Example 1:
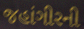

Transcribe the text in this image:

જહાંગીરની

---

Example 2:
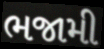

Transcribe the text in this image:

ભજામી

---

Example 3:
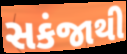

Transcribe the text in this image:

સકંજાથી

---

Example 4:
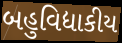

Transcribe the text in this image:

બહુવિદ્યાકીય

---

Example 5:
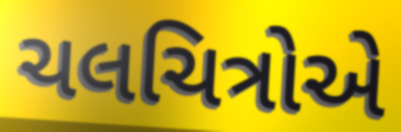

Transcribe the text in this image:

ચલચિત્રોએ